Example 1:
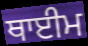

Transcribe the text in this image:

ਥਾਈਮ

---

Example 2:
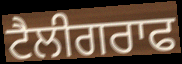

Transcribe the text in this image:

ਟੈਲੀਗਰਾਫ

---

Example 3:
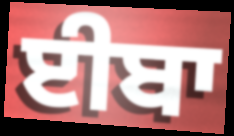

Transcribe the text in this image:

ਈਬਾ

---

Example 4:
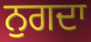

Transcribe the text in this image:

ਨੁਗਦਾ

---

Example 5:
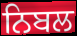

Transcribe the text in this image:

ਨਿਬਲ